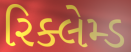
રિક્લેમ્ડ